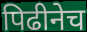
पिढीनेच